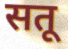
सतू